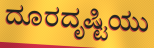
ದೂರದೃಷ್ಟಿಯು